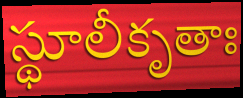
స్థూలీకృతాః